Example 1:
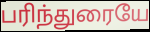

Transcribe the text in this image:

பரிந்துரையே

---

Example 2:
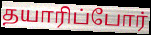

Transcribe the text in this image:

தயாரிப்போர்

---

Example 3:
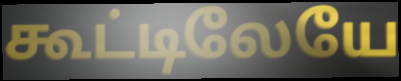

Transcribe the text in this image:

கூட்டிலேயே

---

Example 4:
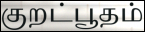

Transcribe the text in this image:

குறட்பூதம்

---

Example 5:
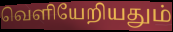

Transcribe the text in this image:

வெளியேறியதும்